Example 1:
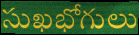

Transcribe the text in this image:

సుఖభోగులు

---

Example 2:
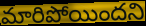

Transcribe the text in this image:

మారిపోయిందని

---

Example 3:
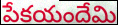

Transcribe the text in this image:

పేకయందేమి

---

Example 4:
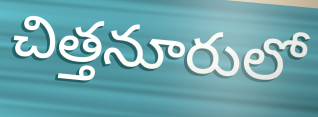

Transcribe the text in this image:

చిత్తనూరులో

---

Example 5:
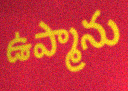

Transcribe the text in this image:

ఉప్మాను